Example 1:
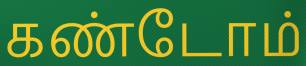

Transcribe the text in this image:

கண்டோம்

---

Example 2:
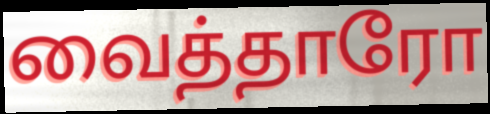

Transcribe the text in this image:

வைத்தாரோ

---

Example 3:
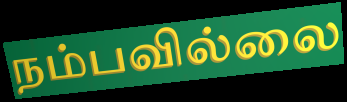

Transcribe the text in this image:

நம்பவில்லை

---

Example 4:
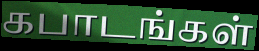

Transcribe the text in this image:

கபாடங்கள்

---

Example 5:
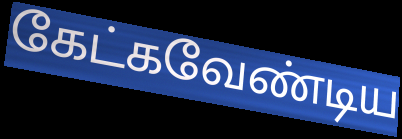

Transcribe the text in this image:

கேட்கவேண்டிய